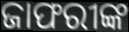
ଜାଫରୀଙ୍କ